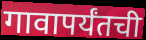
गावापर्यंतची